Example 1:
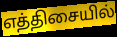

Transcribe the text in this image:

எத்திசையில்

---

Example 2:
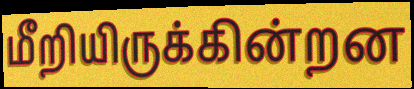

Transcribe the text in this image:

மீறியிருக்கின்றன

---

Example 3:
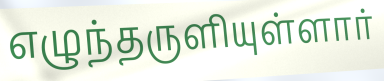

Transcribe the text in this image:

எழுந்தருளியுள்ளார்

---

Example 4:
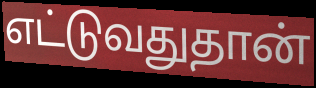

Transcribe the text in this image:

எட்டுவதுதான்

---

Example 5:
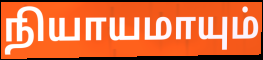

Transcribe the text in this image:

நியாயமாயும்